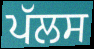
ਪੱਲਸ